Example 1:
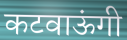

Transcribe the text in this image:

कटवाऊंगी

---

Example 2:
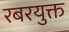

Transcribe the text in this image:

रबरयुक्त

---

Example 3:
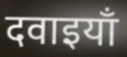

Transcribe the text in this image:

दवाइयाँ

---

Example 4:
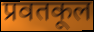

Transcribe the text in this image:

प्रवतकूल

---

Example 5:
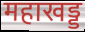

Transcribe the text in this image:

महाखड्ड